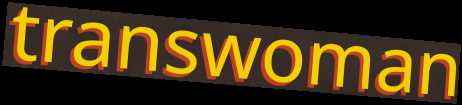
transwoman